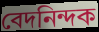
বেদনিন্দক